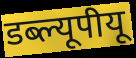
डब्ल्यूपीयू